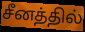
சீனத்தில்